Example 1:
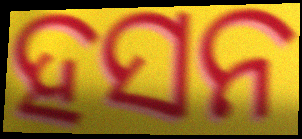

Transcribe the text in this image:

ହସନ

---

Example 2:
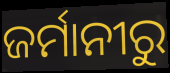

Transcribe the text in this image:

ଜର୍ମାନୀରୁ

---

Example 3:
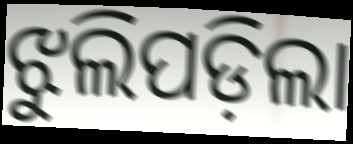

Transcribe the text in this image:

ଝୁଲିପଡ଼ିଲା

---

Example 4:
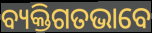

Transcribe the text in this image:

ବ୍ୟକ୍ତିଗତଭାବେ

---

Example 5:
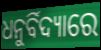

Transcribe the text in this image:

ଧନୁର୍ବିଦ୍ୟାରେ